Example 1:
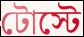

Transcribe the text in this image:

টোস্টে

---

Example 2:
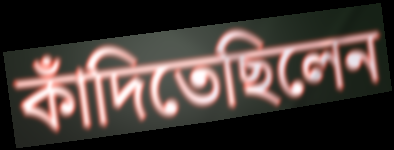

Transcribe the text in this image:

কাঁদিতেছিলেন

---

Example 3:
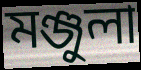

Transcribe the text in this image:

মঞ্জুলা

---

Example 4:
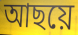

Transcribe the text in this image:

আছয়ে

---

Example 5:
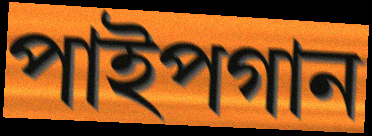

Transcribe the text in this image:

পাইপগান